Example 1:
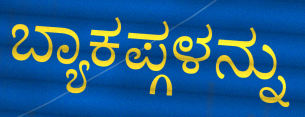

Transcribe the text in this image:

ಬ್ಯಾಕಪ್ಗಳನ್ನು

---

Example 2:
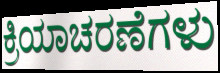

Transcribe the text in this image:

ಕ್ರಿಯಾಚರಣೆಗಳು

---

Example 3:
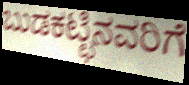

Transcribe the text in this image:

ಬುಡಕಟ್ಟಿನವರಿಗೆ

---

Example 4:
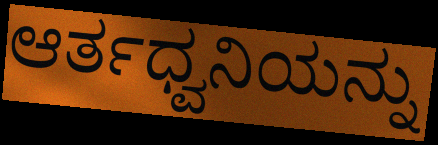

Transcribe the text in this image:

ಆರ್ತಧ್ವನಿಯನ್ನು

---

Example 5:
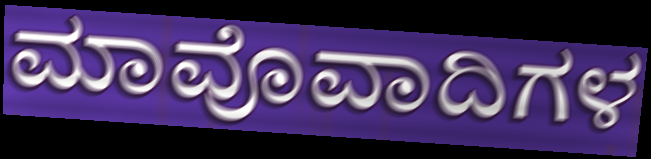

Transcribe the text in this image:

ಮಾವೊವಾದಿಗಳ